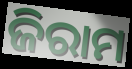
ଜିରାମ